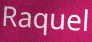
Raquel